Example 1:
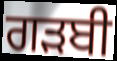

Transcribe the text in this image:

ਗੜਬੀ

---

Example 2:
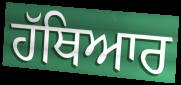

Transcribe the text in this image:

ਹੱਥਿਆਰ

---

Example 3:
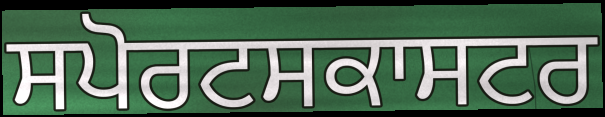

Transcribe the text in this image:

ਸਪੋਰਟਸਕਾਸਟਰ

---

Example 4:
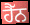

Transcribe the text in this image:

ਹੈੱਨ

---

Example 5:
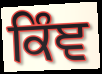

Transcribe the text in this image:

ਕਿੰਞ